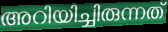
അറിയിച്ചിരുന്നത്